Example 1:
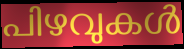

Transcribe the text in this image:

പിഴവുകൾ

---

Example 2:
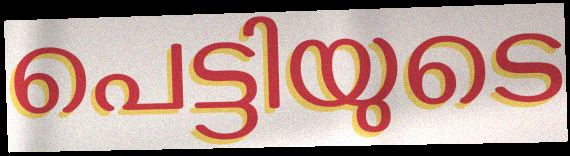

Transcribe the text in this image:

പെട്ടിയുടെ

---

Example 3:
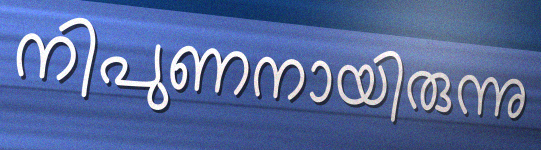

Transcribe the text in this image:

നിപുണനായിരുന്നു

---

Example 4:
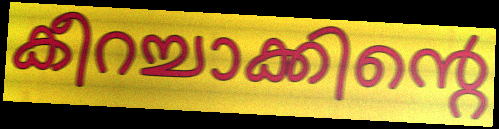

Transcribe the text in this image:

കീറച്ചാക്കിന്റെ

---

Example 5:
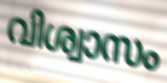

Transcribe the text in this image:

വിശ്വാസം